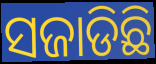
ସଜାଡିଛି